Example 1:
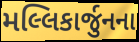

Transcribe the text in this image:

મલ્લિકાર્જુનના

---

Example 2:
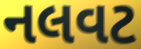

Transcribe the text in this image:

નલવટ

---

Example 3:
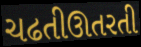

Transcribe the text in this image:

ચઢતીઊતરતી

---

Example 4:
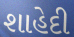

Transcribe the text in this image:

શાહેદી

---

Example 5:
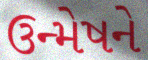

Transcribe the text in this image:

ઉન્મેષને